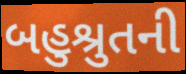
બહુશ્રુતની